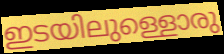
ഇടയിലുള്ളൊരു